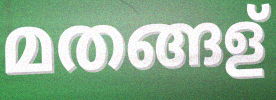
മതങ്ങള്